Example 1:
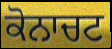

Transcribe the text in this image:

ਕੋਨਾਚਟ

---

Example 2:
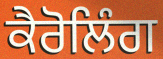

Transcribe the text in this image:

ਕੈਰੋਲਿੰਗ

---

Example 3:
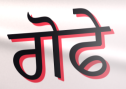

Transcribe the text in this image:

ਗੋਫੇ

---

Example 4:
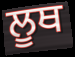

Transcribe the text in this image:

ਲੂਥ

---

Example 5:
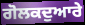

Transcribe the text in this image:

ਗੋਲਕਦੁਆਰੇ